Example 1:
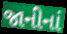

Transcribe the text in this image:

જાનીનાં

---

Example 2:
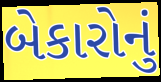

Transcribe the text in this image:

બેકારોનું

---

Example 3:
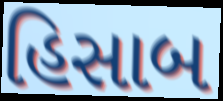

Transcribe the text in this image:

હિસાબ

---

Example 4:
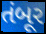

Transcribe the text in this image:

તંબૂર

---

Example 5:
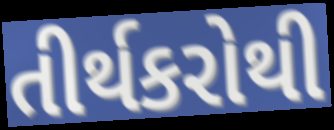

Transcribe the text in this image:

તીર્થકરોથી